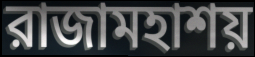
রাজামহাশয়